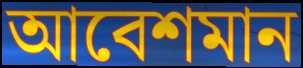
আবেশমান